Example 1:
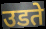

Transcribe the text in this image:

उडते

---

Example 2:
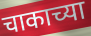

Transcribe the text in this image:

चाकाच्या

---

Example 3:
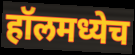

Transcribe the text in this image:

हॉलमध्येच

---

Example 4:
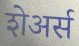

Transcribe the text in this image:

शेअर्स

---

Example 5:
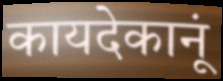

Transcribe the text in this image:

कायदेकानूं